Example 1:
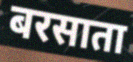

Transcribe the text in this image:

बरसाता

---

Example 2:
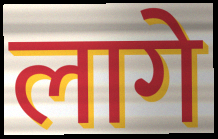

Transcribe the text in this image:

लागे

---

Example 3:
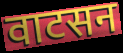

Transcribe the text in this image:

वाटसन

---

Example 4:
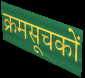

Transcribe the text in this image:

क्रमसूचकों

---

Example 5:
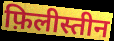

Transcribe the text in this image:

फ़िलीस्तीन